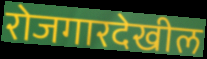
रोजगारदेखील